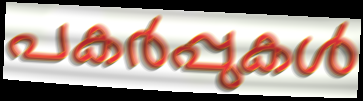
പകർപ്പുകൾ